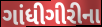
ગાંધીગીરીના